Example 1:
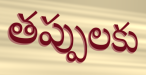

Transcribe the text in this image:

తప్పులకు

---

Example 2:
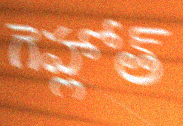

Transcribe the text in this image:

గెహ్లోత్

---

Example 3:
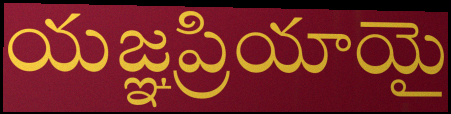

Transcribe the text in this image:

యజ్ఞప్రియాయై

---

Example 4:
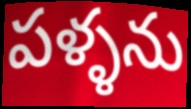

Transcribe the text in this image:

పళ్ళను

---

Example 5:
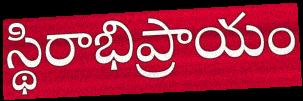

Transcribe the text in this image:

స్థిరాభిప్రాయం